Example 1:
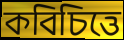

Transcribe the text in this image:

কবিচিত্তে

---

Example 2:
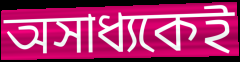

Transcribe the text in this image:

অসাধ্যকেই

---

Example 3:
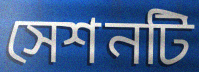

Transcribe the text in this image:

সেশনটি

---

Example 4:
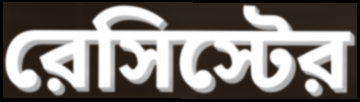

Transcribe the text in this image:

রেসিস্টের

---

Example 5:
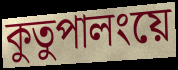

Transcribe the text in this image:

কুতুপালংয়ে